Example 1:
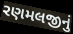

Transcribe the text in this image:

રણમલજીનું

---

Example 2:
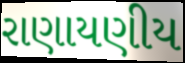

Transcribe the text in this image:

રાણાયણીય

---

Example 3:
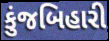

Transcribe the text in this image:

કુંજબિહારી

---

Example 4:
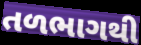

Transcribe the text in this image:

તળભાગથી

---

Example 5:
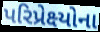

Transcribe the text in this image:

પરિપ્રેક્ષ્યોના